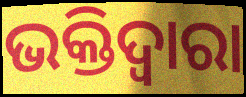
ଭକ୍ତିଦ୍ଵାରା